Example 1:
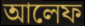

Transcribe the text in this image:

আলেফ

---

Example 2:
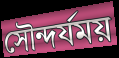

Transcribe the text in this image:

সৌন্দর্যময়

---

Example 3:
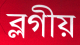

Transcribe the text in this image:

ব্লগীয়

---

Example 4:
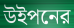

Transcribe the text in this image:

উইপনের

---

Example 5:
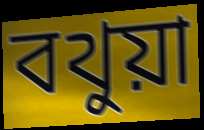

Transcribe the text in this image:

বথুয়া